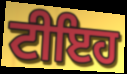
ਟੀਇਹ